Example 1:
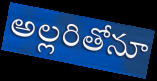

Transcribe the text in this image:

అల్లరితోనూ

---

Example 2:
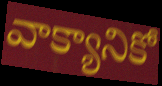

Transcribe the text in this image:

వాక్యానికో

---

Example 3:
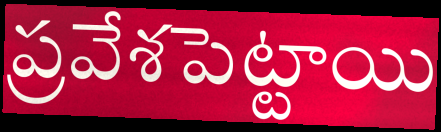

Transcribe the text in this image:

ప్రవేశపెట్టాయి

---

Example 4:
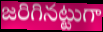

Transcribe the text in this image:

జరిగినట్టుగా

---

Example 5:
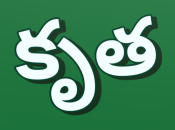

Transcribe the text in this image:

కృత